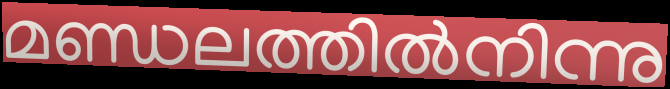
മണ്ഡലത്തിൽനിന്നു